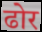
ढोर